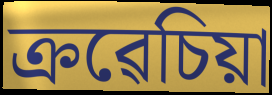
ক্ৰৱেচিয়া